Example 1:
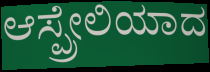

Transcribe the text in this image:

ಆಸ್ಪ್ರೇಲಿಯಾದ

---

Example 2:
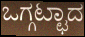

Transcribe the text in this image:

ಒಗ್ಗಟ್ಟಾದ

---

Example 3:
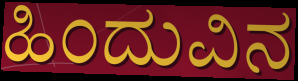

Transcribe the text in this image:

ಹಿಂದುವಿನ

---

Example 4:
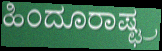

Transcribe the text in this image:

ಹಿಂದೂರಾಷ್ಟ್ರ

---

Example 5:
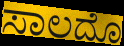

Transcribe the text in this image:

ಸಾಲದೊ